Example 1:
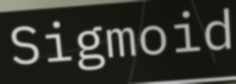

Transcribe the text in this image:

Sigmoid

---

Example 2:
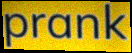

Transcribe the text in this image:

prank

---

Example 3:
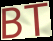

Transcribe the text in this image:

BT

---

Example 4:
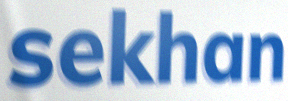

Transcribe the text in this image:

sekhan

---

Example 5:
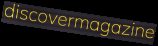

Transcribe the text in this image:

discovermagazine